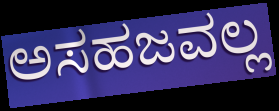
ಅಸಹಜವಲ್ಲ